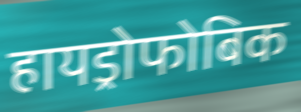
हायड्रोफोबिक